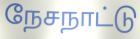
நேசநாட்டு